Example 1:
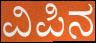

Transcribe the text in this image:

ವಿಪಿನ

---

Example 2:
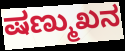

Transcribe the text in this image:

ಷಣ್ಮುಖನ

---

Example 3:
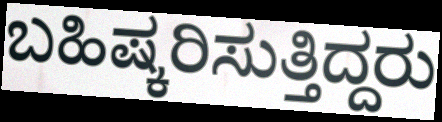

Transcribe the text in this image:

ಬಹಿಷ್ಕರಿಸುತ್ತಿದ್ದರು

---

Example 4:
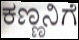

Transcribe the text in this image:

ಕಣ್ಣನಿಗೆ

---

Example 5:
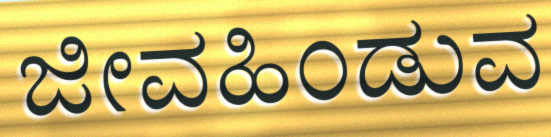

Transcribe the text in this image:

ಜೀವಹಿಂಡುವ